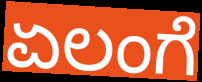
ಏಲಂಗೆ